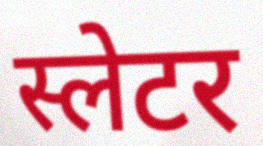
स्लेटर